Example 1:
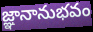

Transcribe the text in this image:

జ్ఞానానుభవం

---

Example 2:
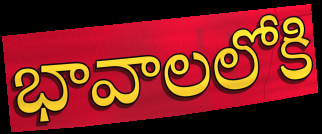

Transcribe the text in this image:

భావాలలోకి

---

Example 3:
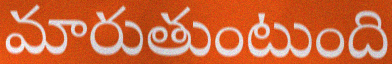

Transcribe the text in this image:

మారుతుంటుంది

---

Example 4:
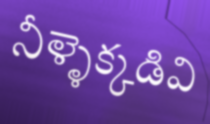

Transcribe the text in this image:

నీళ్ళెక్కడివి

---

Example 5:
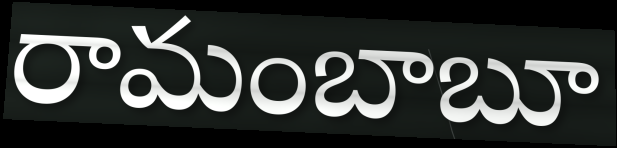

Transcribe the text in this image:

రామంబాబూ